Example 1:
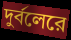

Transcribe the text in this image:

দুর্বলেরে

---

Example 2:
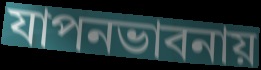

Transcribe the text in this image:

যাপনভাবনায়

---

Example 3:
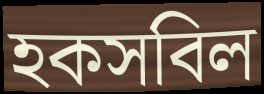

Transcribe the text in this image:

হকসবিল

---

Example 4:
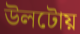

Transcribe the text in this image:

উলটোয়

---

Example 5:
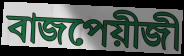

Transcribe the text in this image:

বাজপেয়ীজী